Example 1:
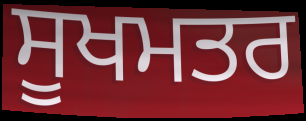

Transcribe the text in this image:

ਸੂਖਮਤਰ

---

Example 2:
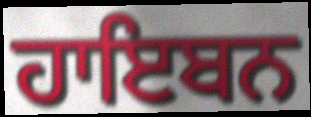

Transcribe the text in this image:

ਹਾਇਬਨ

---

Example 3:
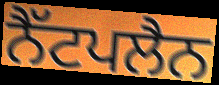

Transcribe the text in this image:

ਨੈੱਟਪਲੈਨ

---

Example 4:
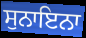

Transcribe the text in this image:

ਸੁਨਾਇਨਾ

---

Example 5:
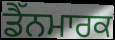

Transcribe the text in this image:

ਡੈੱਨਮਾਰਕ